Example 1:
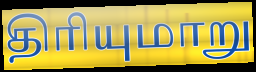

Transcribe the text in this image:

திரியுமாறு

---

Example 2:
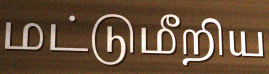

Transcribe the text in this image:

மட்டுமீறிய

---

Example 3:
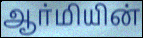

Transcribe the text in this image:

ஆர்மியின்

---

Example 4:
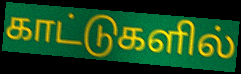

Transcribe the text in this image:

காட்டுகளில்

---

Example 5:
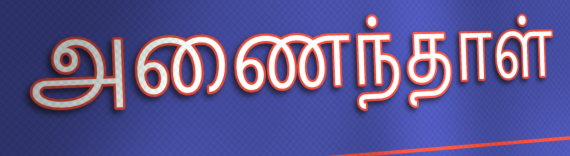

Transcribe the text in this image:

அணைந்தாள்